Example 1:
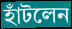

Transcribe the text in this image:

হাঁটলেন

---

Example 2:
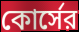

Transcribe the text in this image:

কোর্সের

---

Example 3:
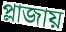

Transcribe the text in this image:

প্লাজায়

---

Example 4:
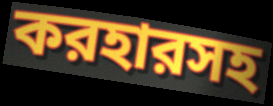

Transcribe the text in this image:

করহারসহ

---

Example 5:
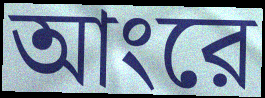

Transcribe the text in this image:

আংরে